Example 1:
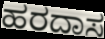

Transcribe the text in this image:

ಹರದಾಸ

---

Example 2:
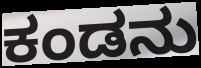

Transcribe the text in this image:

ಕಂಡನು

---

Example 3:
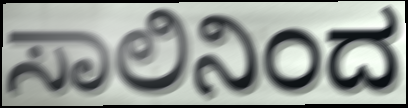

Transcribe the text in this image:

ಸಾಲಿನಿಂದ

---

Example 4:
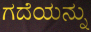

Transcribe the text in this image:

ಗದೆಯನ್ನು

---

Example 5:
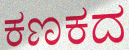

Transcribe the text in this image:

ಕಣಕದ